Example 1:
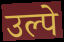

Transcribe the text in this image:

उल्पे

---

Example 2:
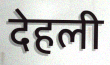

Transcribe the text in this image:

देहली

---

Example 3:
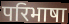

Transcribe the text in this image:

परिभाषा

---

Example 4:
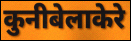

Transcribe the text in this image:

कुनीबेलाकेरे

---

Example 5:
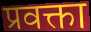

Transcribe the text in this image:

प्रवक्ता